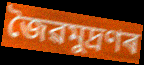
জৈৱমুদ্ৰণৰ